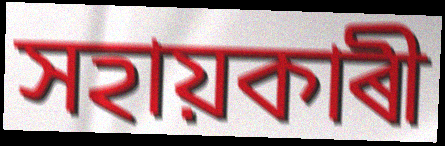
সহায়কাৰী